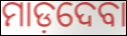
ମାଡ଼ଦେବା